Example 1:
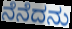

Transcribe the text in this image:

ನೆನೆದನು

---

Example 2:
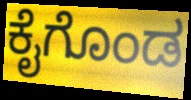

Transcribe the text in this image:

ಕೈಗೊಂಡ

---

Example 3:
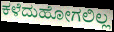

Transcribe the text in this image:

ಕಳೆದುಹೋಗಲಿಲ್ಲ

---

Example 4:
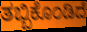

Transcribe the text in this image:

ತಬ್ಬಿಕೊಂಡಿದೆ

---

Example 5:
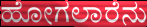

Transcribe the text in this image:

ಹೋಗಲಾರೆನು